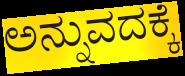
ಅನ್ನುವದಕ್ಕೆ